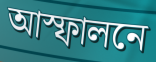
আস্ফালনে